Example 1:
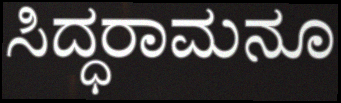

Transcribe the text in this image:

ಸಿದ್ಧರಾಮನೂ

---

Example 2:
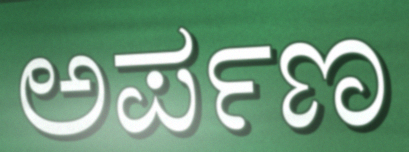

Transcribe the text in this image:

ಅರ್ಪಣ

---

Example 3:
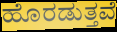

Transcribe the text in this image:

ಹೊರಡುತ್ತವೆ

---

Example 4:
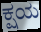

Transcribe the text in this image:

ಕ್ಷಯ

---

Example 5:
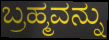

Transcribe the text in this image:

ಬ್ರಹ್ಮವನ್ನು